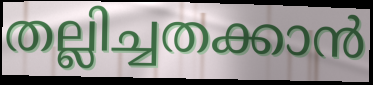
തല്ലിച്ചതക്കാൻ